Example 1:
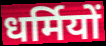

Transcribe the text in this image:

धर्मियों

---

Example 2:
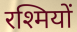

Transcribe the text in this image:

रश्मियों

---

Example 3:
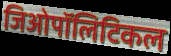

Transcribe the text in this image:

जिओपॉलिटिकल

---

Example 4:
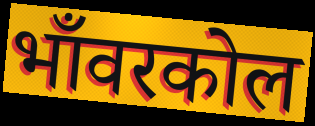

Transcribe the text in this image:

भाँवरकोल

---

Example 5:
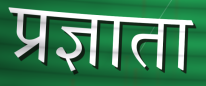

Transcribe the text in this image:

प्रज्ञाता